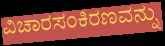
ವಿಚಾರಸಂಕಿರಣವನ್ನು